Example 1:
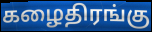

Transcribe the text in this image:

கழைதிரங்கு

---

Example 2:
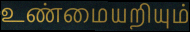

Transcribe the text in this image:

உண்மையறியும்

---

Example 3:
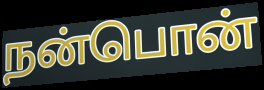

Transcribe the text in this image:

நன்பொன்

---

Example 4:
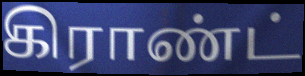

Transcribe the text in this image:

கிராண்ட்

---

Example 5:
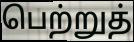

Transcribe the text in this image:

பெற்றுத்